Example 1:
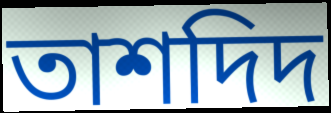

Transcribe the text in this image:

তাশদিদ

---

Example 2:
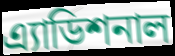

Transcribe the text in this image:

এ্যাডিশনাল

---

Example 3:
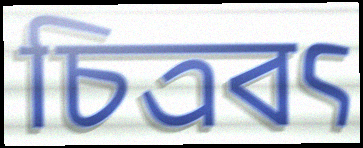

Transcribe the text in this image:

চিত্রবৎ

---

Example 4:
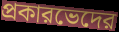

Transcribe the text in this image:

প্রকারভেদের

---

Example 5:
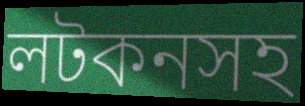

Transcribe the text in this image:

লটকনসহ